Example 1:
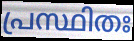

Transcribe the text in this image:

പ്രസ്ഥിതഃ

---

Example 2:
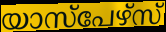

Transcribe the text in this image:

യാസ്പേഴ്സ്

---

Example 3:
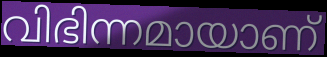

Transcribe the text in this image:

വിഭിന്നമായാണ്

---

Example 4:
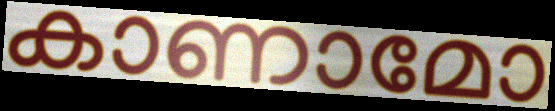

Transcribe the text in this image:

കാണാമോ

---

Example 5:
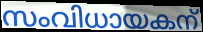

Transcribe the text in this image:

സംവിധായകന്